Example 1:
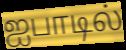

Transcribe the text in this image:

ஐபாடில்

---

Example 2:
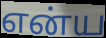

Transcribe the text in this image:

என்ய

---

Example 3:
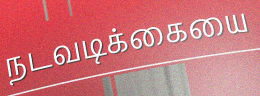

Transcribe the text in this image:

நடவடிக்கையை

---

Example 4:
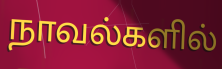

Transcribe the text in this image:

நாவல்களில்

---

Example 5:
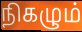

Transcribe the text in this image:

நிகழும்